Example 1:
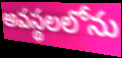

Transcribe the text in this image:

అవస్థలలోను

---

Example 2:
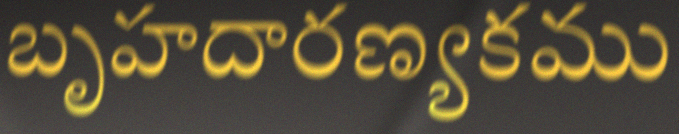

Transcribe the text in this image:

బృహదారణ్యకము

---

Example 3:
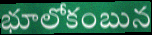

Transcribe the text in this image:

భూలోకంబున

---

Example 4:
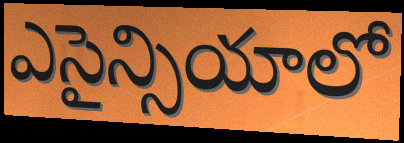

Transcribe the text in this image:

ఎసైన్సియాలో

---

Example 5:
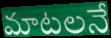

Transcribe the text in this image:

మాటలనే